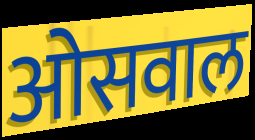
ओसवाल